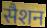
सैशन